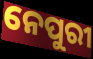
ନେପୁରୀ